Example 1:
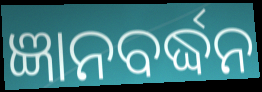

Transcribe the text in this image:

ଜ୍ଞାନବର୍ଦ୍ଧନ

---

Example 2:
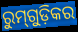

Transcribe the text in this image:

ରୁମ୍‌ଗୁଡ଼ିକର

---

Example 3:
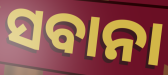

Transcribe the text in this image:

ସବାନା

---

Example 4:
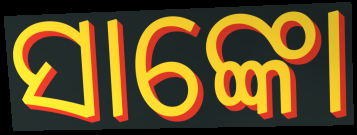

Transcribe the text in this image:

ସାଙ୍କୋ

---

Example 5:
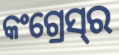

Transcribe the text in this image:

କଂଗ୍ରେସ୍‌ର